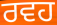
ਰਵਹ